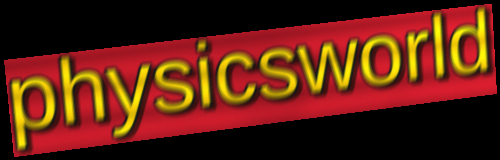
physicsworld